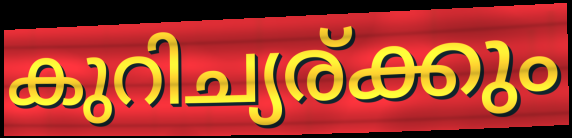
കുറിച്യര്ക്കും